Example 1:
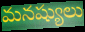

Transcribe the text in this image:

మనష్యులు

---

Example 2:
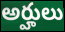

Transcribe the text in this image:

అర్హులు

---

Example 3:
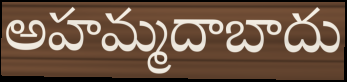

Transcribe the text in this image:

అహమ్మదాబాదు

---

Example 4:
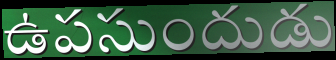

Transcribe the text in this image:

ఉపసుందుడు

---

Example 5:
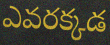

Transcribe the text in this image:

ఎవరక్కడ